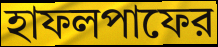
হাফলপাফের